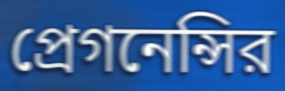
প্রেগনেন্সির